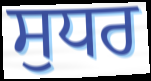
ਸੁਧਰ